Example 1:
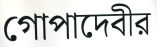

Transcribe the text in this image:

গোপাদেবীর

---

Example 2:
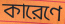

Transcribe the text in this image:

কারেণে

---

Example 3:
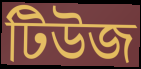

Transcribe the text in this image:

টিউজ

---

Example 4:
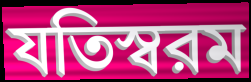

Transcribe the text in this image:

যতিস্বরম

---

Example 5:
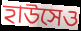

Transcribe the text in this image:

হাউসেও